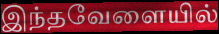
இந்தவேளையில்